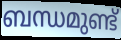
ബന്ധമുണ്ട്